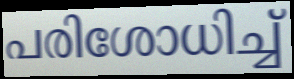
പരിശോധിച്ച്